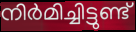
നിർമിച്ചിട്ടുണ്ട്